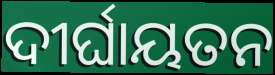
ଦୀର୍ଘାୟତନ